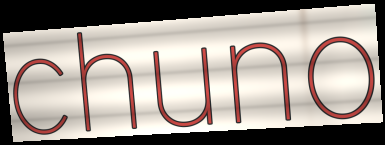
chuno